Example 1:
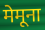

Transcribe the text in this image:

मेमूना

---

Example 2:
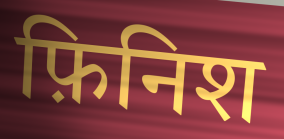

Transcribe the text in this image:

फ़िनिश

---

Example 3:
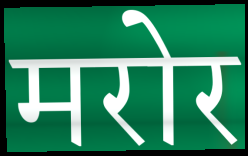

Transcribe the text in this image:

मरोर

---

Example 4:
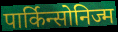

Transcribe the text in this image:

पार्किन्सोनिज्म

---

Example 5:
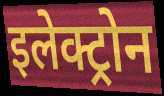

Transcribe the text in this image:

इलेक्ट्रोन